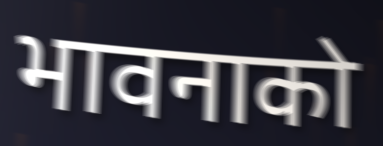
भावनाको